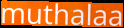
muthalaa